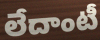
లేదాంటీ